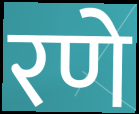
रणे